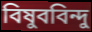
বিষুববিন্দু